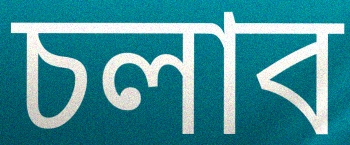
চলাব